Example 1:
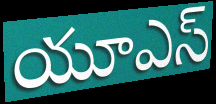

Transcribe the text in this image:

యూఎస్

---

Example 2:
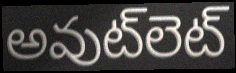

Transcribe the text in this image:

అవుట్‌లెట్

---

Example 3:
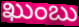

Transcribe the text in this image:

ఖుంబు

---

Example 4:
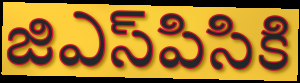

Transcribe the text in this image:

జిఎస్‌పిసికి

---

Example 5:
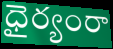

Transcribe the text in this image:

ధైర్యంరా